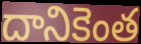
దానికెంత